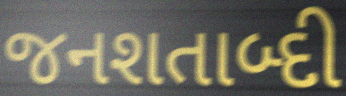
જનશતાબ્દી